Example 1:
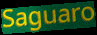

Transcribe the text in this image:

Saguaro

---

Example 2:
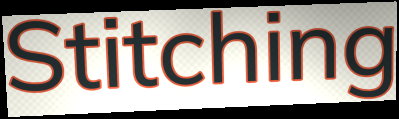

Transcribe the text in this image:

Stitching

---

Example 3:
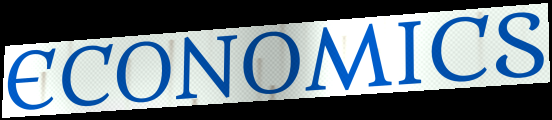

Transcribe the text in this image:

ECONOMICS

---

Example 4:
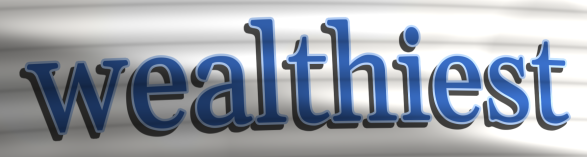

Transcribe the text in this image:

wealthiest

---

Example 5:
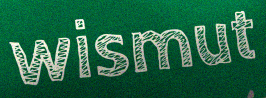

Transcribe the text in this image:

wismut